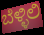
ಬೆಳ್ಳಿಲಿ